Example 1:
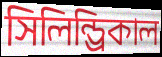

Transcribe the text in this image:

সিলিন্ড্রিকাল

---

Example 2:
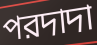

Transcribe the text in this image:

পরদাদা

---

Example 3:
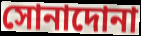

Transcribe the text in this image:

সোনাদোনা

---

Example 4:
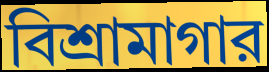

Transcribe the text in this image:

বিশ্রামাগার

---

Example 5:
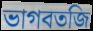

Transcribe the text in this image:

ভাগবতজি